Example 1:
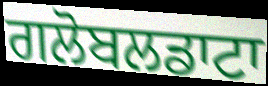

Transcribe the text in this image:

ਗਲੋਬਲਡਾਟਾ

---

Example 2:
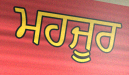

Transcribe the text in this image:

ਮਹਜੂਰ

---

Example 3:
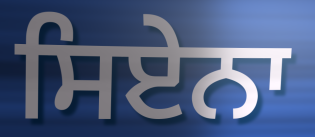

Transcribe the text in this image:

ਸਿਏਨਾ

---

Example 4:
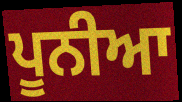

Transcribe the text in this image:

ਪੂਨੀਆ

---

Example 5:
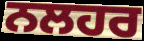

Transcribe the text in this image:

ਨਲਹਰ